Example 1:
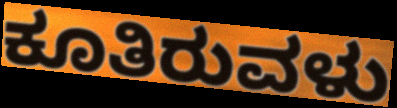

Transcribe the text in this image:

ಕೂತಿರುವಳು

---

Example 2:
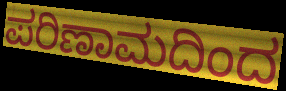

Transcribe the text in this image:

ಪರಿಣಾಮದಿಂದ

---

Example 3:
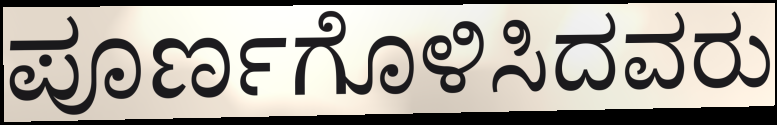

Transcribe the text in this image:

ಪೂರ್ಣಗೊಳಿಸಿದವರು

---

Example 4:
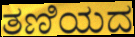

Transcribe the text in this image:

ತಣಿಯದ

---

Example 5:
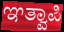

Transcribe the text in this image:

ಞತ್ವಾಪಿ